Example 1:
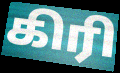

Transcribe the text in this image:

கிரி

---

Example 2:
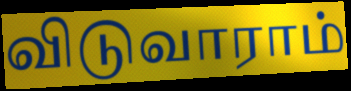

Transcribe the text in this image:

விடுவாராம்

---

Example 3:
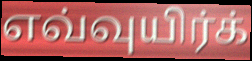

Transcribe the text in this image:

எவ்வுயிர்க்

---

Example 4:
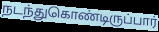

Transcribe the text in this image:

நடந்துகொண்டிருப்பார்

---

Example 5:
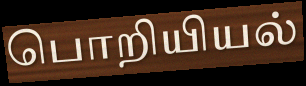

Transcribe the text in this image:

பொறியியல்